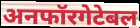
अनफॉरगेटेबल